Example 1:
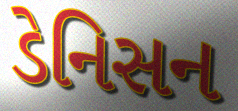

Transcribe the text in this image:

ડેનિસન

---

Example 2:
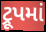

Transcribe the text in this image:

ટ્રૂપમાં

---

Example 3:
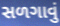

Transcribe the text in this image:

સળગાવું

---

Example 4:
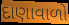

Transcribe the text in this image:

દાણાવાળો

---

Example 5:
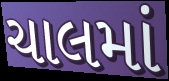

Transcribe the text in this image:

ચાલમાં